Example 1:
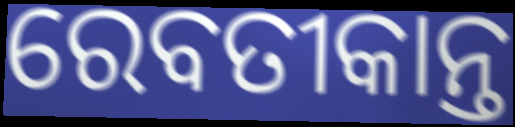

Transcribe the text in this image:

ରେବତୀକାନ୍ତ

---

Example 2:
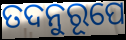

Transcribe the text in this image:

ତଦନୁରୂପେ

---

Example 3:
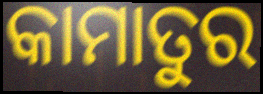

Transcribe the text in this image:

କାମାତୁର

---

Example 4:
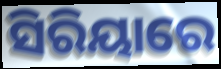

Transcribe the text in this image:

ସିରିୟାରେ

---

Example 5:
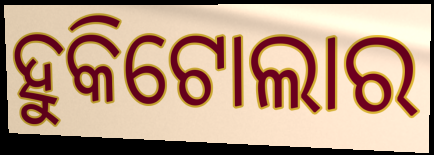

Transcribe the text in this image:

ହୁକିଟୋଲାର